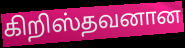
கிறிஸ்தவனான